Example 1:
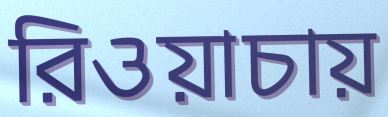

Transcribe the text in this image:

রিওয়াচায়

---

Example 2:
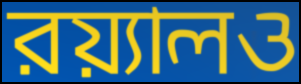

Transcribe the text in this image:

রয়্যালও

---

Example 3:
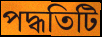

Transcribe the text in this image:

পদ্ধতিটি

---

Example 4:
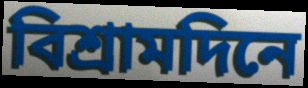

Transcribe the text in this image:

বিশ্রামদিনে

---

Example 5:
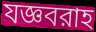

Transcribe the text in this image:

যজ্ঞবরাহ